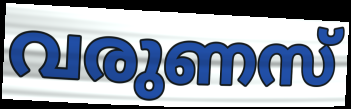
വരുണസ്